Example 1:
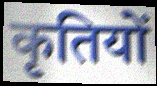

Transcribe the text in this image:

कृतियों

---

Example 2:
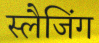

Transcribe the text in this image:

स्लैजिंग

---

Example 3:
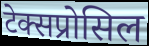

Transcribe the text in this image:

टेक्सप्रोसिल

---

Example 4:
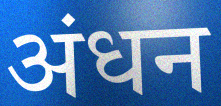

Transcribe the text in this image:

अंधन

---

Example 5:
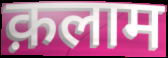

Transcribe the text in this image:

क़लाम